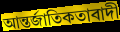
আন্তর্জাতিকতাবাদী